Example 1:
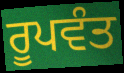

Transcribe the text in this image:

ਰੂਪਵੰਤ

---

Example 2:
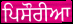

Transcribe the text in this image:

ਪਿਸੌਰੀਆ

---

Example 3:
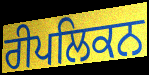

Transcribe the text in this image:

ਰੀਪਲਿਕਨ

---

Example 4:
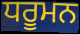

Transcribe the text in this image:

ਧਰੂਮਨ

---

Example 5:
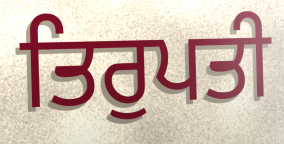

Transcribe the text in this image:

ਤਿਰੁਪਤੀ